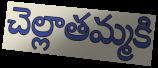
చెల్లాతమ్మకి